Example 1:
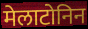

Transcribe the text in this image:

मेलाटोनिन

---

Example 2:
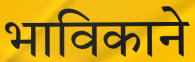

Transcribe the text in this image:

भाविकाने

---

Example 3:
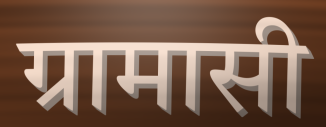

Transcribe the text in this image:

ग्रामासी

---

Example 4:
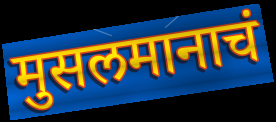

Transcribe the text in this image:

मुसलमानाचं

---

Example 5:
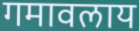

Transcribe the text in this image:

गमावलाय